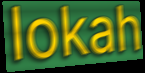
lokah